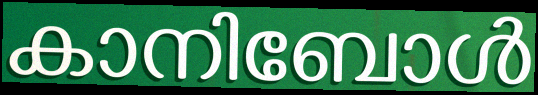
കാനിബോൾ